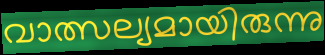
വാത്സല്യമായിരുന്നു